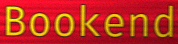
Bookend